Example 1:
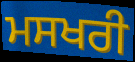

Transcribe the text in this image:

ਮਸਖਰੀ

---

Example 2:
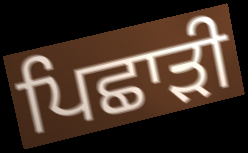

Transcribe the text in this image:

ਪਿਛਾੜੀ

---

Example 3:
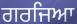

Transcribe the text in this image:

ਗਰਜਿਆ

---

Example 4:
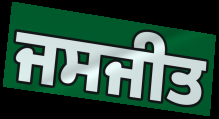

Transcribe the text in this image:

ਜਸਜੀਤ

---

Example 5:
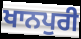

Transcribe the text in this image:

ਖਾਨਪੁਰੀ